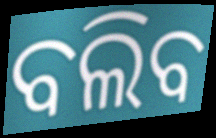
ବଲିବ